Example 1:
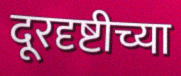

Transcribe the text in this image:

दूरदृष्टीच्या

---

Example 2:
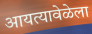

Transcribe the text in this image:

आयत्यावेळेला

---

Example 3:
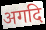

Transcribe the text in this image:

अगदि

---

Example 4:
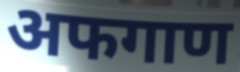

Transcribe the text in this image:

अफगाण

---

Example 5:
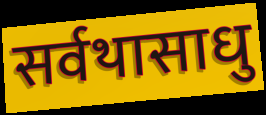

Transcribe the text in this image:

सर्वथासाधु